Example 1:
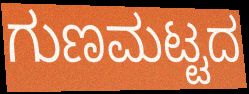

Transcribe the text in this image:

ಗುಣಮಟ್ಟದ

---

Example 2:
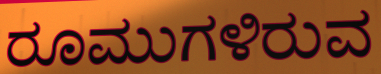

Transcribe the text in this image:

ರೂಮುಗಳಿರುವ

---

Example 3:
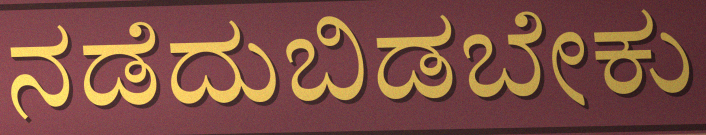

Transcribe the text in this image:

ನಡೆದುಬಿಡಬೇಕು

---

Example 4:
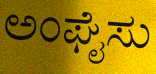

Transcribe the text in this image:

ಅಂಘೈಸು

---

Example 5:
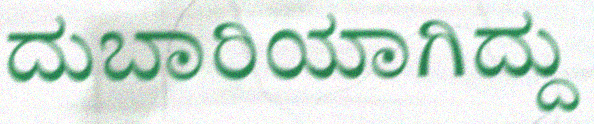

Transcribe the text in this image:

ದುಬಾರಿಯಾಗಿದ್ದು